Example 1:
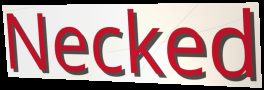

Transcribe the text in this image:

Necked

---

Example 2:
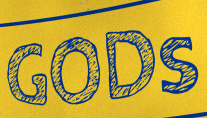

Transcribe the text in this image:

GODs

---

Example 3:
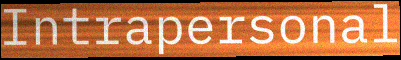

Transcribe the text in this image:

Intrapersonal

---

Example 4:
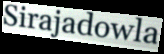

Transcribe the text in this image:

Sirajadowla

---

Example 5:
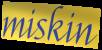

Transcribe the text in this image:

miskin